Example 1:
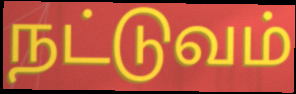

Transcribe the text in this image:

நட்டுவம்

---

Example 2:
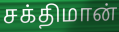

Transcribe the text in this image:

சக்திமான்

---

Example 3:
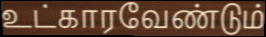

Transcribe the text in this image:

உட்காரவேண்டும்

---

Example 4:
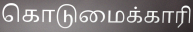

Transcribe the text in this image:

கொடுமைக்காரி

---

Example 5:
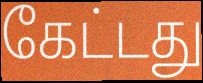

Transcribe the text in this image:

கேட்டது